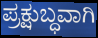
ಪ್ರಕ್ಷುಬ್ಧವಾಗಿ